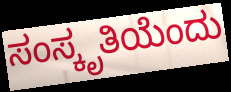
ಸಂಸ್ಕೃತಿಯೆಂದು